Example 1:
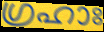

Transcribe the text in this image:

ഗ്രഹാഃ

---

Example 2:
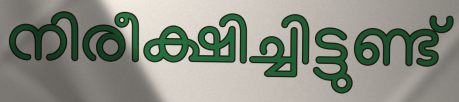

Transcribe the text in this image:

നിരീക്ഷിച്ചിട്ടുണ്ട്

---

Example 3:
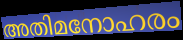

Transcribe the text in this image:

അതിമനോഹരം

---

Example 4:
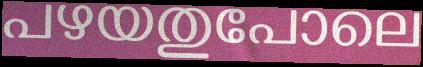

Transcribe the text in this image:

പഴയതുപോലെ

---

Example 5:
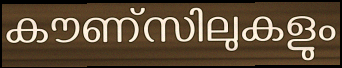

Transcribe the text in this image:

കൗണ്സിലുകളും